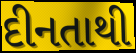
દીનતાથી